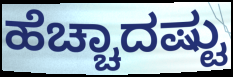
ಹೆಚ್ಚಾದಷ್ಟು